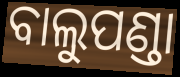
ବାଲୁପଣ୍ଡା